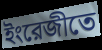
ইংরেজীতে